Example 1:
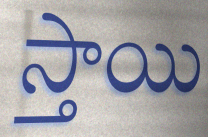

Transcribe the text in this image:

స్తాయి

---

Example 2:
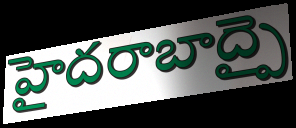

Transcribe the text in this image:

హైదరాబాద్పై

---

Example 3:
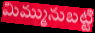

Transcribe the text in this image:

మిమ్మునుబట్టి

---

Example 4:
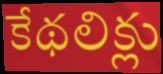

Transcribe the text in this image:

కేథలిక్లు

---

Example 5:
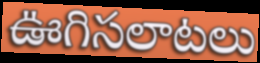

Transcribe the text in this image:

ఊగిసలాటలు